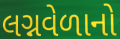
લગ્નવેળાનો